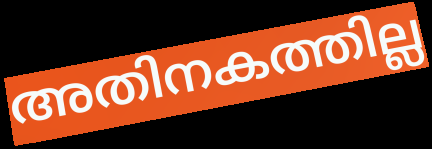
അതിനകത്തില്ല